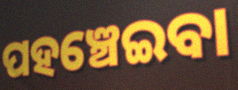
ପହଞ୍ଚେଇବା